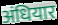
अंधियार